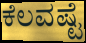
ಕೆಲವಷ್ಟೆ